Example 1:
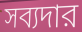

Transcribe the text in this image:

সব্যদার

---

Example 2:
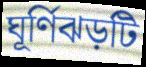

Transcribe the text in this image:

ঘূর্ণিঝড়টি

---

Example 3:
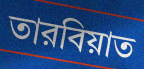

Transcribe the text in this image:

তারবিয়াত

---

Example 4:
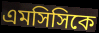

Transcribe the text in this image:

এমসিসিকে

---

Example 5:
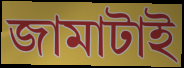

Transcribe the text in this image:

জামাটাই